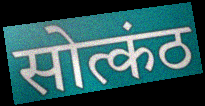
सोत्कंठ